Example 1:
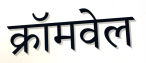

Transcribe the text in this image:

क्रॉमवेल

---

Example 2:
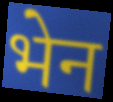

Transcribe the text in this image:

भेन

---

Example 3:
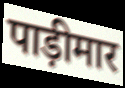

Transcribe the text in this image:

पाड़ीमार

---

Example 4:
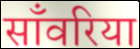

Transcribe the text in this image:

साँवरिया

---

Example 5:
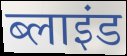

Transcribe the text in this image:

ब्लाइंड